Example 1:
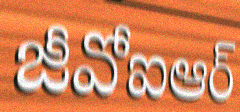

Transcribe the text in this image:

జీవోఐఆర్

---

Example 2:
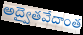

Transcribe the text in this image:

అద్వైతవేదాంత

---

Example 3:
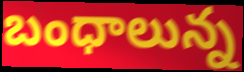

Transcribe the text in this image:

బంధాలున్న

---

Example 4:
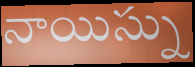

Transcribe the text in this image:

నాయిస్ను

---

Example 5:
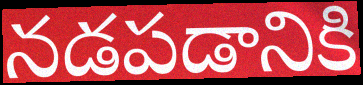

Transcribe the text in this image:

నడపడానికి